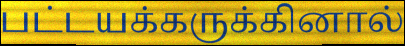
பட்டயக்கருக்கினால்